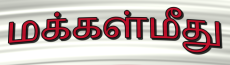
மக்கள்மீது